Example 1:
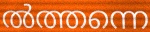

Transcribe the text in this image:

ൽത്തന്നെ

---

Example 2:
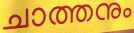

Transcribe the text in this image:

ചാത്തനും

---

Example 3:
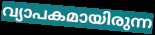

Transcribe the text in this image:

വ്യാപകമായിരുന്ന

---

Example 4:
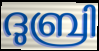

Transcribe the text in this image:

ദുബ്രി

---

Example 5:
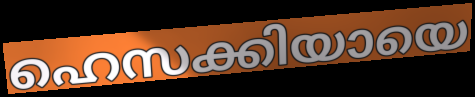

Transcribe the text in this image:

ഹെസക്കിയായെ